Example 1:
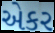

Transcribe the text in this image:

એકર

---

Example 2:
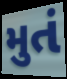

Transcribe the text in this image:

મુતં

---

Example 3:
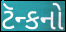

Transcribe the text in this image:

ટૅન્કનો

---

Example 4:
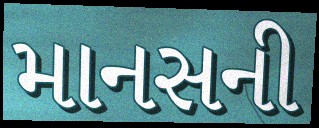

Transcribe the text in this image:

માનસની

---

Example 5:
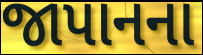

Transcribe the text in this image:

જાપાનના